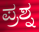
ಪ್ರಶ್ನ